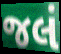
જલં